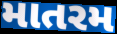
માતરમ